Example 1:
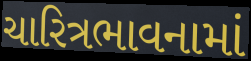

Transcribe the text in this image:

ચારિત્રભાવનામાં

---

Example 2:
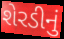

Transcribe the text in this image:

શેરડીનું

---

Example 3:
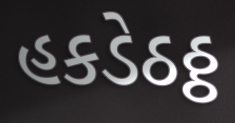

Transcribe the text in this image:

હકડેઠઠ્ઠ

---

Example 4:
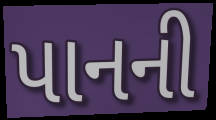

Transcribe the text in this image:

પાનની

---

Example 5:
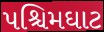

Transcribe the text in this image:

પશ્ચિમઘાટ